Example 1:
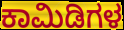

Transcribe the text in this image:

ಕಾಮಿಡಿಗಳ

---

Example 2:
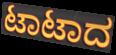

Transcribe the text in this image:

ಟಾಟಾದ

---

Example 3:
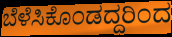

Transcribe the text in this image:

ಬೆಳೆಸಿಕೊಂಡದ್ದರಿಂದ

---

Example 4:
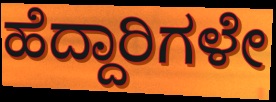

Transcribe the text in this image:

ಹೆದ್ದಾರಿಗಳೇ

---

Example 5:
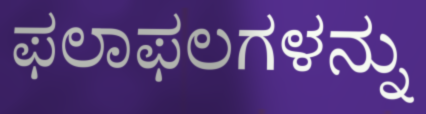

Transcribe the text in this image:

ಫಲಾಫಲಗಳನ್ನು